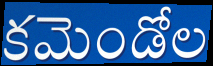
కమెండోల